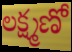
లక్ష్మణో